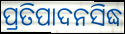
ପ୍ରତିପାଦନସିଦ୍ଧ